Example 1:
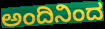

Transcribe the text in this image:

ಅಂದಿನಿಂದ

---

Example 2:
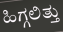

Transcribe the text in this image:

ಹಿಗ್ಗಲಿತ್ತು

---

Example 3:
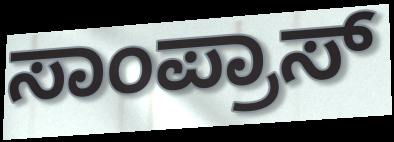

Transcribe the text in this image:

ಸಾಂಪ್ರಾಸ್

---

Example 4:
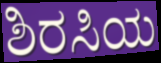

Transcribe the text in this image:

ಶಿರಸಿಯ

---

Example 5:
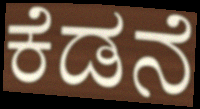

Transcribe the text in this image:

ಕೆಡನೆ